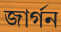
জার্গন